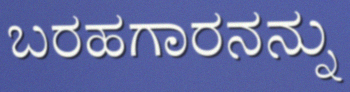
ಬರಹಗಾರನನ್ನು